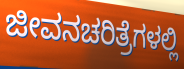
ಜೀವನಚರಿತ್ರೆಗಳಲ್ಲಿ